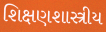
શિક્ષણશાસ્ત્રીય